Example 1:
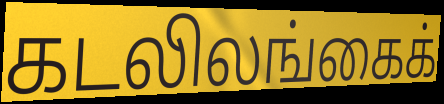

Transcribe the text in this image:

கடலிலங்கைக்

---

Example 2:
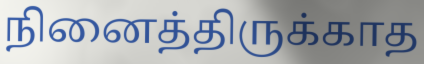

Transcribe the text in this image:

நினைத்திருக்காத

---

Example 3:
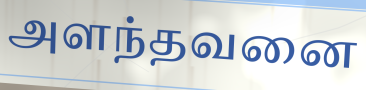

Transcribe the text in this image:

அளந்தவனை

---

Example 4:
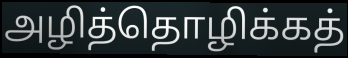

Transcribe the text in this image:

அழித்தொழிக்கத்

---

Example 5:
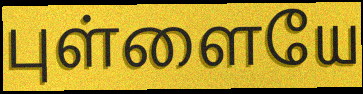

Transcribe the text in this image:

புள்ளையே